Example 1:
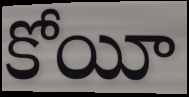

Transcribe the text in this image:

కోయీ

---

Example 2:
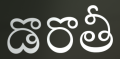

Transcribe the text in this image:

డొరొతీ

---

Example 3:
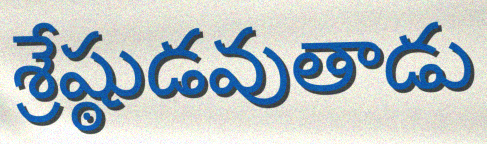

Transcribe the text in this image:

శ్రేష్ఠుడవుతాడు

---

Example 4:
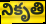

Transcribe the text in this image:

నికృతి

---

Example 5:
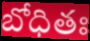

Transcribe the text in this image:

బోధితః